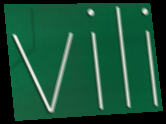
vili